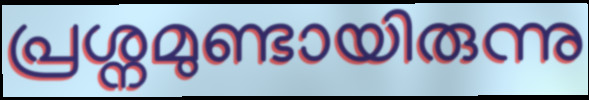
പ്രശ്നമുണ്ടായിരുന്നു